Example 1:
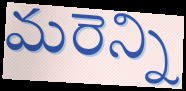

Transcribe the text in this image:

మరెన్ని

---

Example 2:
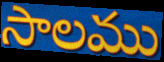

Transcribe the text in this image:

సాలము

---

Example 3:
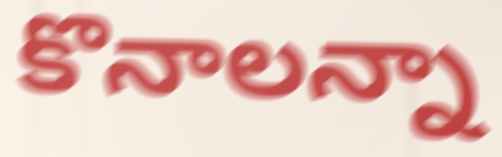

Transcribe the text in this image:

కొనాలన్నా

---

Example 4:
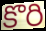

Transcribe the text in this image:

కొరి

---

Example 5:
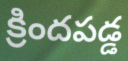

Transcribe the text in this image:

క్రిందపడ్డ